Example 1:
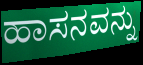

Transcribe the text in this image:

ಹಾಸನವನ್ನು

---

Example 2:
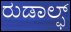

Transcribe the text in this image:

ರುಡಾಲ್ಫ್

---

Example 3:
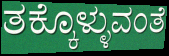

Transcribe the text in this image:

ತಕ್ಕೊಳ್ಳುವಂತೆ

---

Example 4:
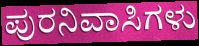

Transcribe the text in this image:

ಪುರನಿವಾಸಿಗಳು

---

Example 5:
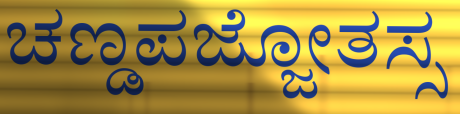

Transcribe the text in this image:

ಚಣ್ಡಪಜ್ಜೋತಸ್ಸ